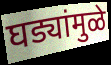
घड्यांमुळे